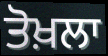
ਤੋਖ਼ਲਾ